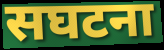
सघटना